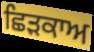
ਛਿੜਕਾਅ